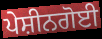
ਪੇਸ਼ੀਨਗੋਈ